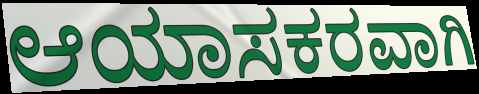
ಆಯಾಸಕರವಾಗಿ